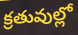
క్రతువుల్లో